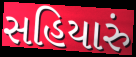
સહિયારું